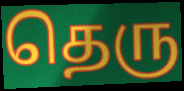
தெரு